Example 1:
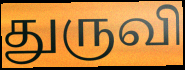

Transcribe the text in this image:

துருவி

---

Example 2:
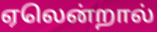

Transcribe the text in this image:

ஏலென்றால்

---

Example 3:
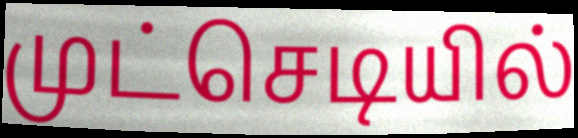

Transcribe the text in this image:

முட்செடியில்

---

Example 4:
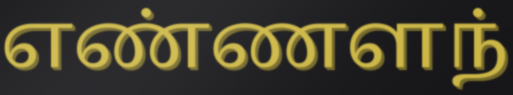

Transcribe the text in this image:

எண்ணளந்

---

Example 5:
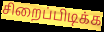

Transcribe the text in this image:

சிறைப்பிடிக்க